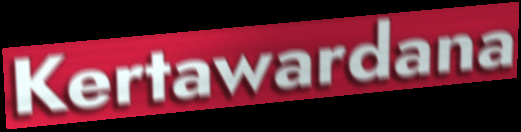
Kertawardana